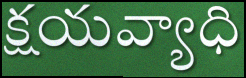
క్షయవ్యాధి